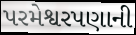
પરમેશ્વરપણાની